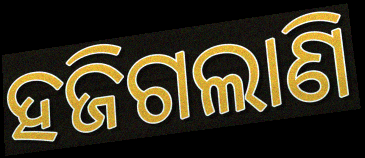
ହଜିଗଲାଣି